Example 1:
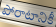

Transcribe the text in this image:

పోరాటానికీ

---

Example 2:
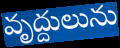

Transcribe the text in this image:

వృద్దులును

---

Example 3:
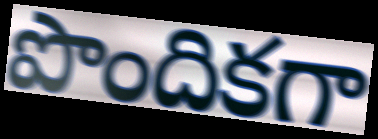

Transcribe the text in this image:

పొందికగా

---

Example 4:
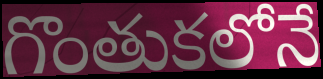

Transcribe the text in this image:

గొంతుకలోనే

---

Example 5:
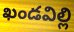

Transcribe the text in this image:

ఖండవిల్లి